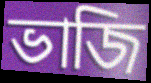
ভাজি